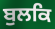
ਬੁਲਕਿ